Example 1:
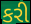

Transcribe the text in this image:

કરી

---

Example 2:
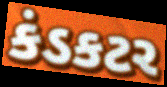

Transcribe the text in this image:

કંડકટર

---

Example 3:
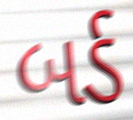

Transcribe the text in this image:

બર્ડ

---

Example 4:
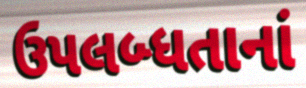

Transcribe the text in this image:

ઉપલબ્ધતાનાં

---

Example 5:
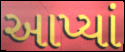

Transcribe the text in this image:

આપ્યાં